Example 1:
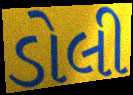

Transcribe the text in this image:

ડોલી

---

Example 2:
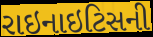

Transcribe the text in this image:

રાઇનાઇટિસની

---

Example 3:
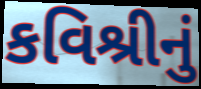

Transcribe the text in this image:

કવિશ્રીનું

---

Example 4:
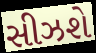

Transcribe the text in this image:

સીઝશે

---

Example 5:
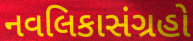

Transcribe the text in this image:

નવલિકાસંગ્રહો